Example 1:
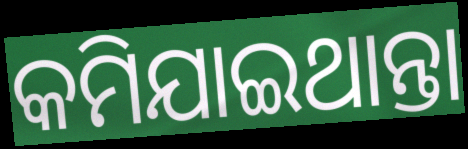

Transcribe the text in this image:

କମିଯାଇଥାନ୍ତା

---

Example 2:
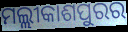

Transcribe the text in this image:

ମଲ୍ଲୀକାଶପୁରର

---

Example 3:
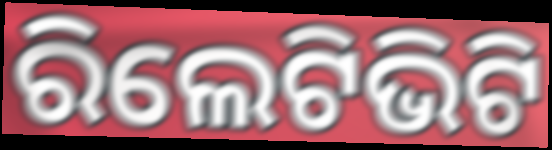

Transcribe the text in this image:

ରିଲେଟିଭିଟି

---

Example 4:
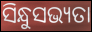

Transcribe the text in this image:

ସିନ୍ଧୁସଭ୍ୟତା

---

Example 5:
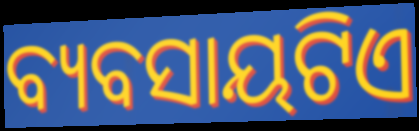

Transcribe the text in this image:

ବ୍ୟବସାୟଟିଏ